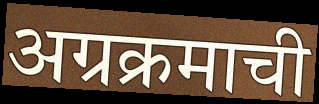
अग्रक्रमाची